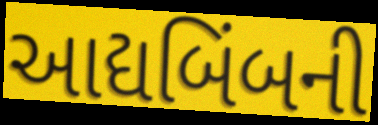
આદ્યબિંબની